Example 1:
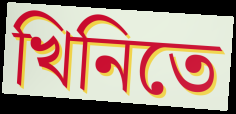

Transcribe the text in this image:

খিনিতে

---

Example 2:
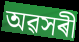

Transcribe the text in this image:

অৱসৰী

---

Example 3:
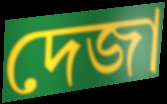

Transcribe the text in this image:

দেজা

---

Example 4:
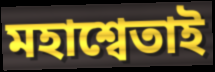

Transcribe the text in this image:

মহাশ্বেতাই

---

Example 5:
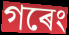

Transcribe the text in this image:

গৰেং